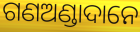
ଗଣଅଣ୍ଡାଦାନେ